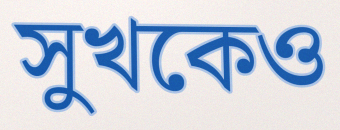
সুখকেও